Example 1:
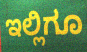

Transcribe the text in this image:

ಇಲ್ಲಿಗೂ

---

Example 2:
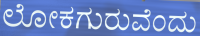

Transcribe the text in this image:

ಲೋಕಗುರುವೆಂದು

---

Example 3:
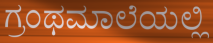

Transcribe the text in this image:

ಗ್ರಂಥಮಾಲೆಯಲ್ಲಿ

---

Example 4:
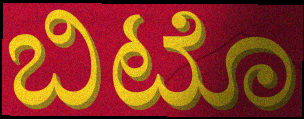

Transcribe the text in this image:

ಬಿಟೊ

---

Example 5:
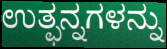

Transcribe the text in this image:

ಉತ್ಫನ್ನಗಳನ್ನು